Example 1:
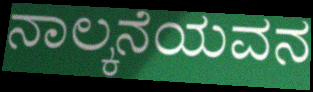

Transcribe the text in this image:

ನಾಲ್ಕನೆಯವನ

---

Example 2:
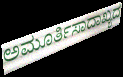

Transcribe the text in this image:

ಅಮೂರ್ತಿಸಾದಾಖ್ಯದ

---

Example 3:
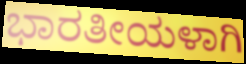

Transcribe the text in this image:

ಭಾರತೀಯಳಾಗಿ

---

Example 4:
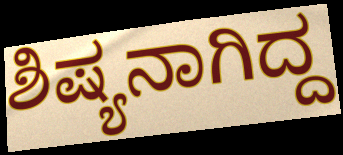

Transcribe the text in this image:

ಶಿಷ್ಯನಾಗಿದ್ದ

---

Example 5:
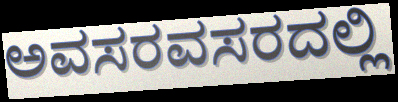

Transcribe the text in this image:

ಅವಸರವಸರದಲ್ಲಿ